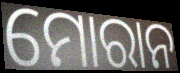
ମୋରାନ